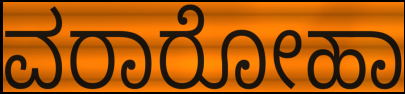
ವರಾರೋಹಾ